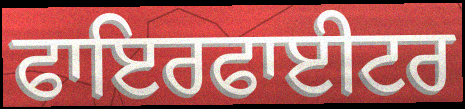
ਫਾਇਰਫਾਈਟਰ